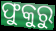
ଫୁକୁରୁ